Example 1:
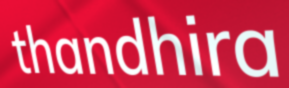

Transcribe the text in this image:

thandhira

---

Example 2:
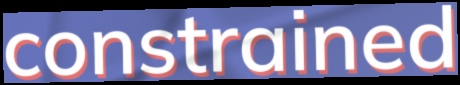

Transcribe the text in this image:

constrained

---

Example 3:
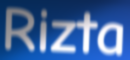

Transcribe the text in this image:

Rizta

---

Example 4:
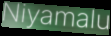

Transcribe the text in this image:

Niyamalu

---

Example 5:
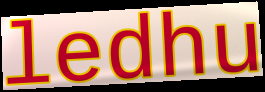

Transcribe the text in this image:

ledhu